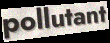
pollutant